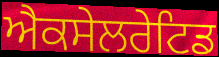
ਐਕਸੇਲਰੇਟਿਡ